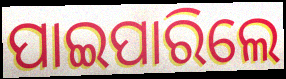
ପାଇପାରିଲେ